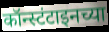
कॉन्स्टंटाइनच्या